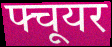
फ्चूयर